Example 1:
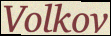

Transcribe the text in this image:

Volkov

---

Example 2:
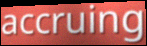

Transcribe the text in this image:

accruing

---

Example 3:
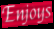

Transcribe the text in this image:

Enjoys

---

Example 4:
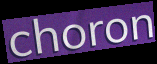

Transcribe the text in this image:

choron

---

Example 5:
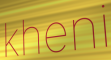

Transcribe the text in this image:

kheni